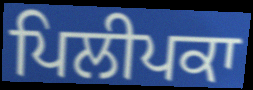
ਪਿਲੀਪਕਾ